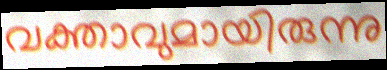
വക്താവുമായിരുന്നു